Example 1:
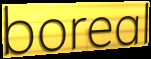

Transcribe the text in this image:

boreal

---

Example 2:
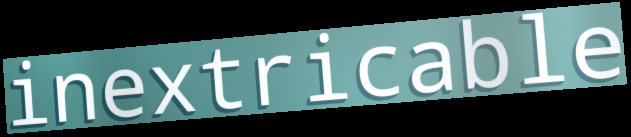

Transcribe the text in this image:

inextricable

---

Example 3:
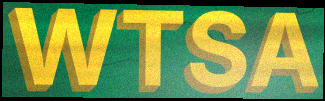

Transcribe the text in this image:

WTSA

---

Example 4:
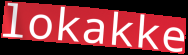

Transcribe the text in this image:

lokakke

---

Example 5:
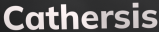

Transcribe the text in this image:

Cathersis